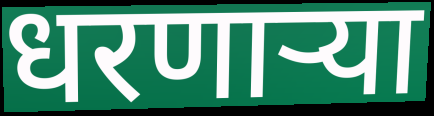
धरणाऱ्या